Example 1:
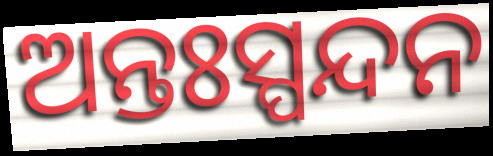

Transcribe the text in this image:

ଅନ୍ତଃସ୍ପନ୍ଦନ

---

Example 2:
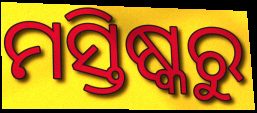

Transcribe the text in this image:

ମସ୍ତିଷ୍କରୁ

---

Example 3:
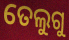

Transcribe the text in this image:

ତେଲୁଗୁ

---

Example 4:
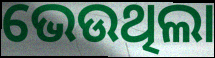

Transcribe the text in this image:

ଭେଉଥିଲା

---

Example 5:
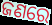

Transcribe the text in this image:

ଜଣରେ